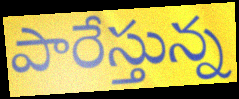
పారేస్తున్న